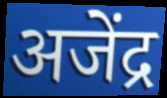
अजेंद्र